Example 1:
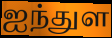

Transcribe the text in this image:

ஐந்துள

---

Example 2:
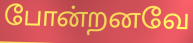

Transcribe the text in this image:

போன்றனவே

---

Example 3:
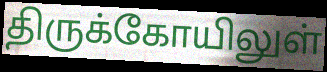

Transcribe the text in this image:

திருக்கோயிலுள்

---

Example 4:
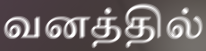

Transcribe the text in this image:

வனத்தில்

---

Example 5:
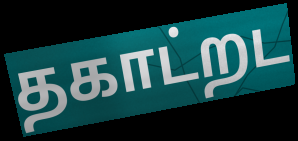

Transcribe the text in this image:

தகாட்றட